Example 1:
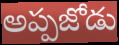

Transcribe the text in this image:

అప్పజోడు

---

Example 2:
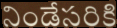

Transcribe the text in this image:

నిండేసరికి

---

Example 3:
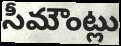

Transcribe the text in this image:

సీమౌంట్లు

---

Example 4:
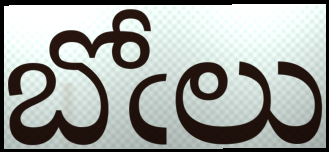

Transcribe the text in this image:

బోఁలు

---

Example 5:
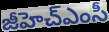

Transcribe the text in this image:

జీహెచ్ఎంసీ